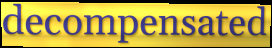
decompensated